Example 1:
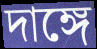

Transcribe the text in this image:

দাঙ্গে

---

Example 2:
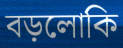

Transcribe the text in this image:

বড়লোকি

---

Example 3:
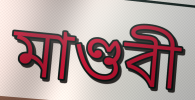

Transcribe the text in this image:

মাণ্ডবী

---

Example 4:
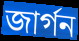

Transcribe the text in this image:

জার্গন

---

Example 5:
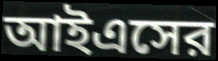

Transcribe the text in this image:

আইএসের